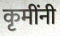
कृमींनी